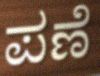
ಪಣೆ